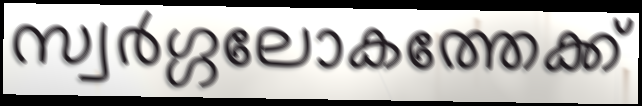
സ്വർഗ്ഗലോകത്തേക്ക്